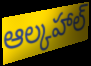
ఆల్కహాల్